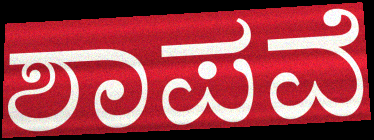
ಶಾಪವೆ